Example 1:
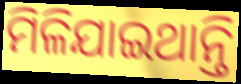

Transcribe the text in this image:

ମିଳିଯାଇଥାନ୍ତି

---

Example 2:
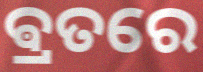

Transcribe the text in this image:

ଵ୍ରତରେ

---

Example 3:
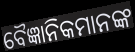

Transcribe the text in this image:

ବୈଜ୍ଞାନିକମାନଙ୍କ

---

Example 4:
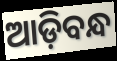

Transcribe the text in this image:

ଆଡ଼ିବନ୍ଧ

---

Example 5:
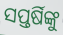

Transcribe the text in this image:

ସପ୍ତର୍ଷିଙ୍କୁ